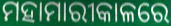
ମହାମାରୀକାଳରେ